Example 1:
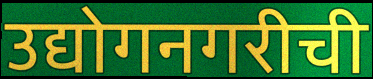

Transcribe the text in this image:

उद्योगनगरीची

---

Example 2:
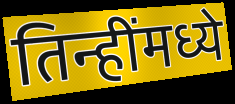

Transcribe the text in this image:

तिन्हींमध्ये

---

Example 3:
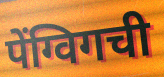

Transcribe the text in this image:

पेंग्विगची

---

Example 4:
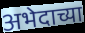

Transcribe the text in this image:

अभेदाच्या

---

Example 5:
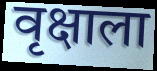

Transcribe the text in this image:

वृक्षाला